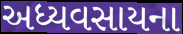
અધ્યવસાયના